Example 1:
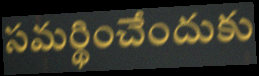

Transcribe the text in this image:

సమర్థించేందుకు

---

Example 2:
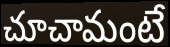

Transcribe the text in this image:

చూచామంటే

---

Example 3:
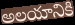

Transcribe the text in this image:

అలయానికి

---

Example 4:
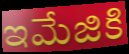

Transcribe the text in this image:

ఇమేజికి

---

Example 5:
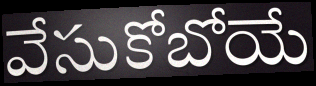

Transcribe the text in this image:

వేసుకోబోయే